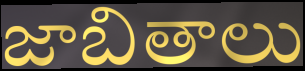
జాబితాలు